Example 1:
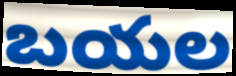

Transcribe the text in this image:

బయల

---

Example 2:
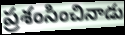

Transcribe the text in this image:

ప్రశంసించినాడు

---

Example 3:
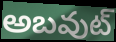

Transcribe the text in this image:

అబవుట్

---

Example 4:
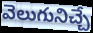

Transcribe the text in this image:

వెలుగునిచ్చే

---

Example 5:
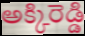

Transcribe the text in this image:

అక్కిరెడ్డి